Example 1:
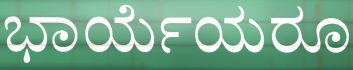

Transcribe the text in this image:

ಭಾರ್ಯೆಯರೂ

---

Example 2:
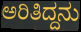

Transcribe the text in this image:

ಅರಿತಿದ್ದನು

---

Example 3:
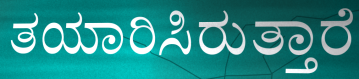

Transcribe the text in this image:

ತಯಾರಿಸಿರುತ್ತಾರೆ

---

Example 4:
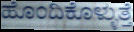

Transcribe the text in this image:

ಹೊಂದಿಕೊಳ್ಳುತ್ತೆ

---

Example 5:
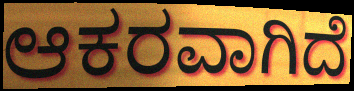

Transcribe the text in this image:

ಆಕರವಾಗಿದೆ